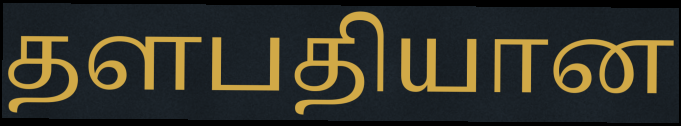
தளபதியான